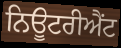
ਨਿਊਟਰੀਐਂਟ